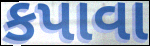
કપાવા